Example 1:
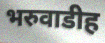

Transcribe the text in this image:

भरुवाडीह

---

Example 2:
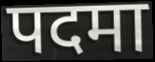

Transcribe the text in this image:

पदमा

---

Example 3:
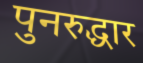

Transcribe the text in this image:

पुनरुद्धार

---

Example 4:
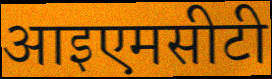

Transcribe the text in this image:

आइएमसीटी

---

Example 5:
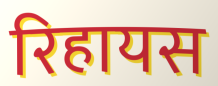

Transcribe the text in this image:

रिहायस